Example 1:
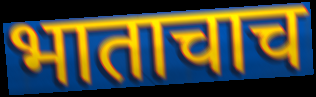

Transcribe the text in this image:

भाताचाच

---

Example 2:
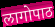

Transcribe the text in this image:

लागोपाठ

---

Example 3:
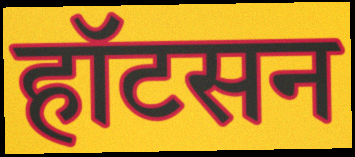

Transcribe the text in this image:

हॉटसन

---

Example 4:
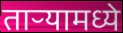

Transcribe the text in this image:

ताऱ्यामध्ये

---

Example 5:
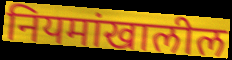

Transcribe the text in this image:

नियमांखालील